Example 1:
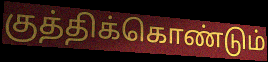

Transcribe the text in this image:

குத்திக்கொண்டும்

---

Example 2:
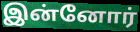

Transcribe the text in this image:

இன்னோர்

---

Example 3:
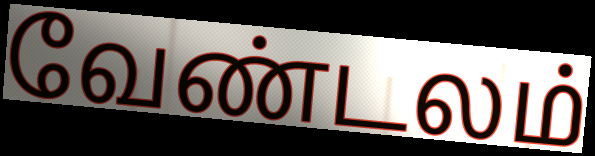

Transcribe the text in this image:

வேண்டலம்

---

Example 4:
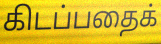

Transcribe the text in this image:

கிடப்பதைக்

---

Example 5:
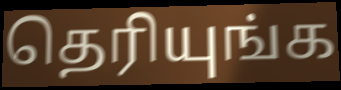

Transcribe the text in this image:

தெரியுங்க